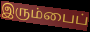
இரும்பைப்